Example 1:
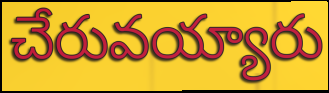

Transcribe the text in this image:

చేరువయ్యారు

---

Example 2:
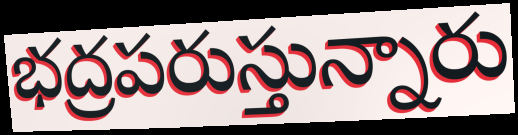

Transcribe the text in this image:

భద్రపరుస్తున్నారు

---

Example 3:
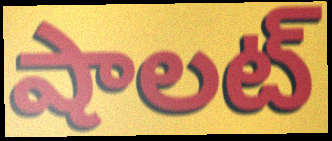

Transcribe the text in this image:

షాలట్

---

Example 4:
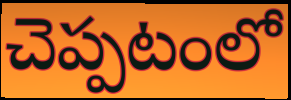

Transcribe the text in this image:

చెప్పటంలో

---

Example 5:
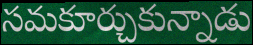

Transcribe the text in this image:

సమకూర్చుకున్నాడు